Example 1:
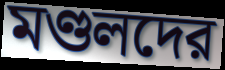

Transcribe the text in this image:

মণ্ডলদের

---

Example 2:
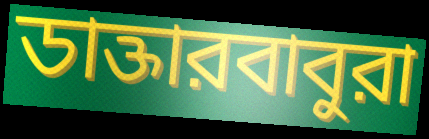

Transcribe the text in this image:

ডাক্তারবাবুরা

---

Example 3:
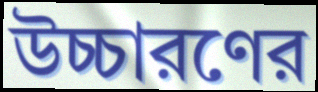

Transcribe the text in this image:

উচ্চারণের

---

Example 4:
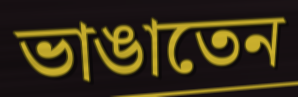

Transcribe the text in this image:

ভাঙাতেন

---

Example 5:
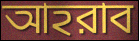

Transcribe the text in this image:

আহরাব